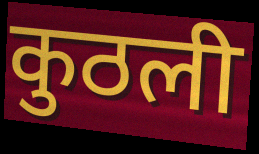
कुठली